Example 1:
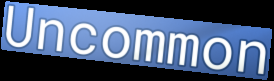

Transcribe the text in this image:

Uncommon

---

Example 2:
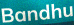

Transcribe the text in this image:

Bandhu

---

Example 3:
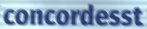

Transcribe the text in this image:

concordesst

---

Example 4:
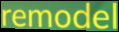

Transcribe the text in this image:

remodel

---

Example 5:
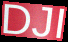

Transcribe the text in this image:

DJI